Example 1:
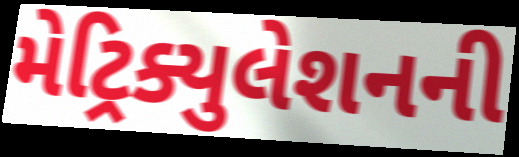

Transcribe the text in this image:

મેટ્રિક્યુલેશનની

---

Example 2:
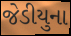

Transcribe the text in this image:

જેડીયુના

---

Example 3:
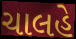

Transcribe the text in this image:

ચાલહે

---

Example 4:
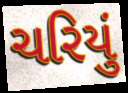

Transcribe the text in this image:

ચરિયું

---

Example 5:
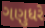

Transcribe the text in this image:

ગણુધરે